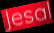
Jesal